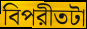
বিপরীতটা